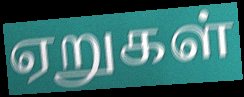
ஏறுகள்